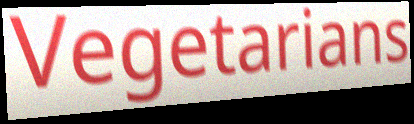
Vegetarians